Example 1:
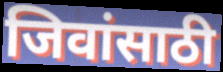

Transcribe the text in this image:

जिवांसाठी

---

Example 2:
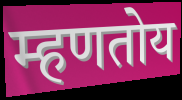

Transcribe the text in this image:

म्हणतोय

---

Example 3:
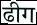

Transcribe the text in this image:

ढीग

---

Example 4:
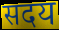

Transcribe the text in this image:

सदय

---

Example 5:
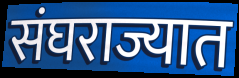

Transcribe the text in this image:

संघराज्यात